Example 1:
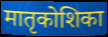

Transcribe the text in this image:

मातृकोशिका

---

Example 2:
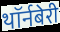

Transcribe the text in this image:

थॉर्नबेरी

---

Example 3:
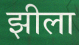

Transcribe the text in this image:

झीला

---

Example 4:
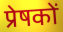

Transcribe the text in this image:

प्रेषकों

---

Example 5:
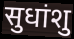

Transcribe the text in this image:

सुधांशु